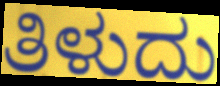
ತಿಳುದು